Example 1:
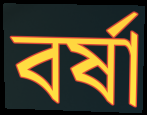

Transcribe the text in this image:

বৰ্ষা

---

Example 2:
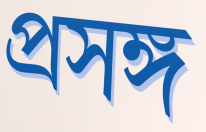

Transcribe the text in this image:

প্ৰসঙ্গ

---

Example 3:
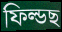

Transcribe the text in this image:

ফিল্ডছ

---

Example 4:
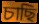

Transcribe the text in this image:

চাছি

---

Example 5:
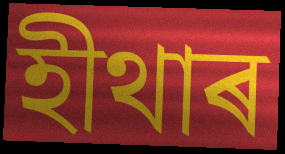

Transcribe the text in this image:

হীথাৰ